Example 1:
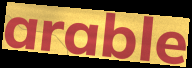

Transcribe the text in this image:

arable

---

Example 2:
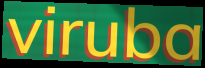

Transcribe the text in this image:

viruba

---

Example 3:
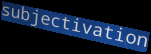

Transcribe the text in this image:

subjectivation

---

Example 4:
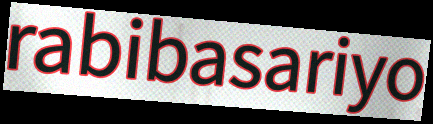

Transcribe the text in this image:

rabibasariyo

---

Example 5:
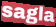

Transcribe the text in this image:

sagla